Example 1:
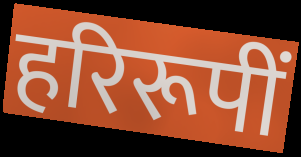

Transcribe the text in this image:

हरिरूपीं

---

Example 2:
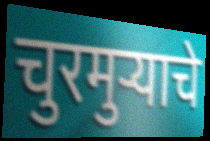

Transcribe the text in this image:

चुरमुऱ्याचे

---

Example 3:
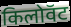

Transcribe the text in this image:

किलोवॅट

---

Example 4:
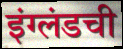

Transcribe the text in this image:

इंग्लंडची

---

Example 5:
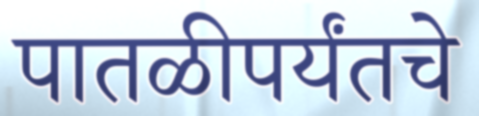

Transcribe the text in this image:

पातळीपर्यंतचे